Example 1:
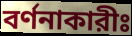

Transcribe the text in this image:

বর্ণনাকারীঃ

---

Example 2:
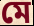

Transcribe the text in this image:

মে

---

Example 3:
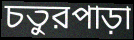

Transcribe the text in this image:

চতুরপাড়া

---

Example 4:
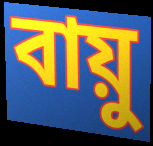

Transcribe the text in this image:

বায়ু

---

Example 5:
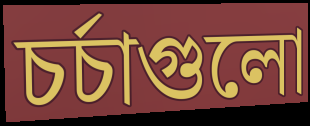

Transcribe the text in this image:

চর্চাগুলো